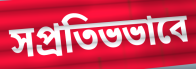
সপ্রতিভভাবে